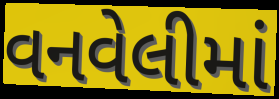
વનવેલીમાં